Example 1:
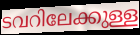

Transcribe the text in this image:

ടവറിലേക്കുള്ള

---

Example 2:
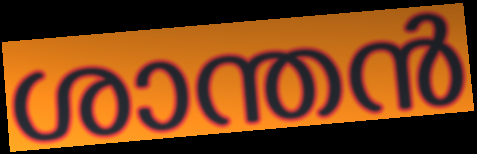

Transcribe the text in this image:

ശാന്തൻ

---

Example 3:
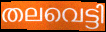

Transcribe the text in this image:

തലവെട്ടി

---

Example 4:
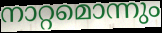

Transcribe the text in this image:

നാറ്റമൊന്നും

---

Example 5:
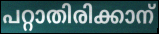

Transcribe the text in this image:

പറ്റാതിരിക്കാന്